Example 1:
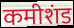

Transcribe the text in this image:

कमीशंड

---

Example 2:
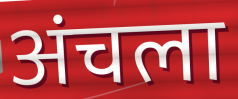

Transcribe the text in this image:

अंचला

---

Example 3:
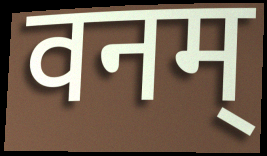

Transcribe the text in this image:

वनम्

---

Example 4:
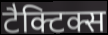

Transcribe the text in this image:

टैक्टिक्स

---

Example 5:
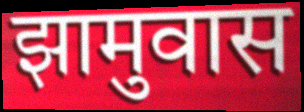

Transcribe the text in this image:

झामुवास